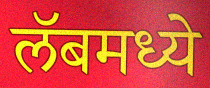
लॅबमध्ये